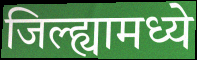
जिल्ह्यामध्ये